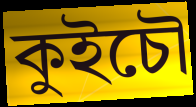
কুইচৌ